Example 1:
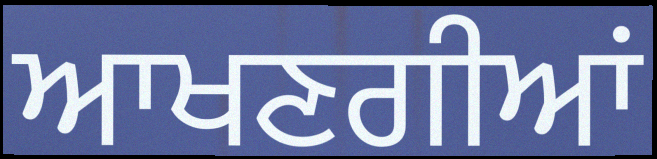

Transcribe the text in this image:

ਆਖਣਗੀਆਂ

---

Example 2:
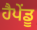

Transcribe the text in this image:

ਹੈਪੇਂਡੂ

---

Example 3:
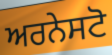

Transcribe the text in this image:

ਅਰਨੇਸਟੋ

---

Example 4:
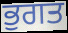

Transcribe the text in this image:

ਭੁਗਤ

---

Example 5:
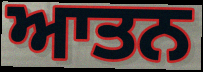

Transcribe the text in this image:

ਆਤਨ